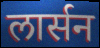
लार्सन